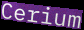
Cerium